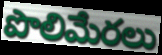
పొలిమేరలు